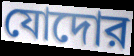
যোদোর